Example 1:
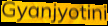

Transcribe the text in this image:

Gyanjyotini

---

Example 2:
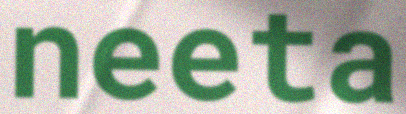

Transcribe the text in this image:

neeta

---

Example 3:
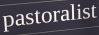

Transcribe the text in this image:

pastoralist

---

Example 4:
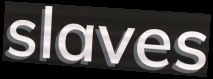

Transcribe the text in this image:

slaves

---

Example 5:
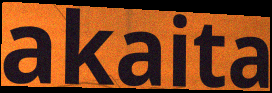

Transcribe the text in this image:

akaita